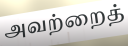
அவற்றைத்